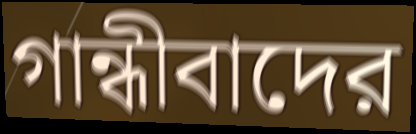
গান্ধীবাদের